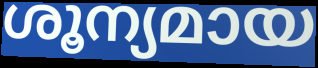
ശൂന്യമായ